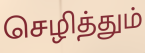
செழித்தும்